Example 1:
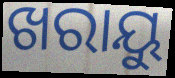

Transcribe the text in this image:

ଖରାୟୁ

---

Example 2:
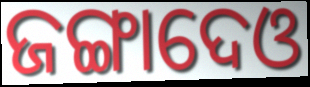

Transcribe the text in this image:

ଜଙ୍ଗାଦେଓ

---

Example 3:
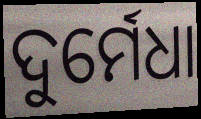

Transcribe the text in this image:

ଦୁର୍ମେଧା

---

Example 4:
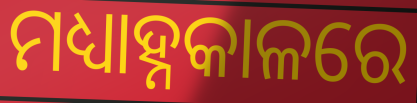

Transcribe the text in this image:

ମଧ୍ୟାହ୍ନକାଳରେ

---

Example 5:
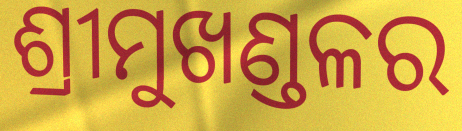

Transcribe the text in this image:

ଶ୍ରୀମୁଖଣ୍ଡଳର